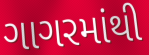
ગાગરમાંથી